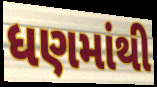
ધણમાંથી